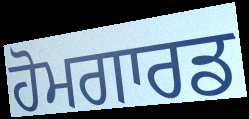
ਹੋਮਗਾਰਡ